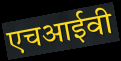
एचआईवी